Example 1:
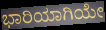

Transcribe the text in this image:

ಭಾರಿಯಾಗಿಯೇ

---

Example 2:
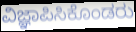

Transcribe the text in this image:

ವಿಜ್ಞಾಪಿಸಿಕೊಂಡರು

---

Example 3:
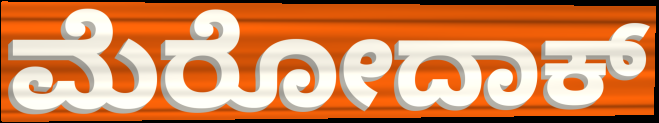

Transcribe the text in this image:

ಮೆರೋದಾಕ್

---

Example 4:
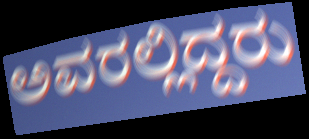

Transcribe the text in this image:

ಅವರಲ್ಲಿದ್ದರು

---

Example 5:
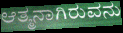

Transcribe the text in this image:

ಆತ್ಮನಾಗಿರುವನು